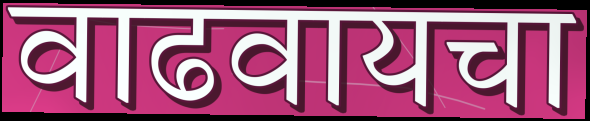
वाढवायचा